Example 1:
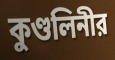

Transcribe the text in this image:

কুণ্ডলিনীর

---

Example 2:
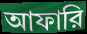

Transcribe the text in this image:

আফারি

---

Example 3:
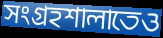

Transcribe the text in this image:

সংগ্রহশালাতেও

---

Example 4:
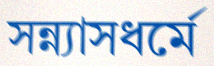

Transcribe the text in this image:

সন্ন্যাসধর্মে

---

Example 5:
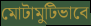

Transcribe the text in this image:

মোটামুটিভাবে